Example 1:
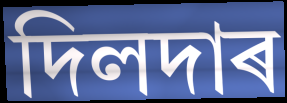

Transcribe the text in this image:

দিলদাৰ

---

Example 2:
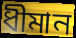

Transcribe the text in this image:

ধীমান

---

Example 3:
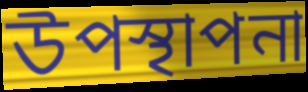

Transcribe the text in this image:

উপস্থাপনা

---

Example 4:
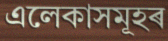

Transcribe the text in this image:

এলেকাসমূহৰ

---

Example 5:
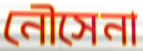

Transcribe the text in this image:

নৌসেনা